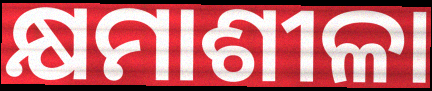
କ୍ଷମାଶୀଳା